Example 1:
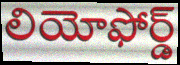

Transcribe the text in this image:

లియోఫోర్డ్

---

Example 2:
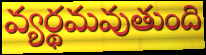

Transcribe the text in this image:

వ్యర్థమవుతుంది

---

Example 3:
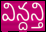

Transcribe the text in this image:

విన్దన్తి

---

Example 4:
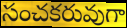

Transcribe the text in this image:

సంచకరువుగా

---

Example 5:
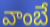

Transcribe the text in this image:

వాంబే